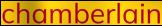
chamberlain